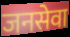
जनसेवा